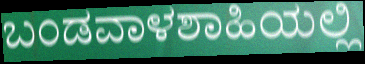
ಬಂಡವಾಳಶಾಹಿಯಲ್ಲಿ